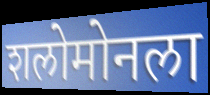
शलोमोनला